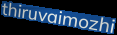
thiruvaimozhi